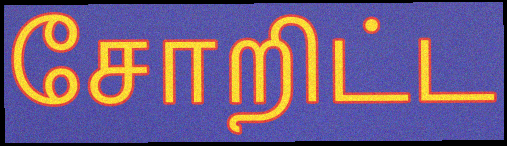
சோறிட்ட